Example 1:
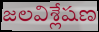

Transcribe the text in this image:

జలవిశ్లేషణ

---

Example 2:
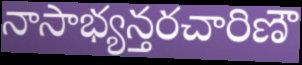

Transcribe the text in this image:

నాసాభ్యన్తరచారిణౌ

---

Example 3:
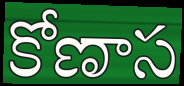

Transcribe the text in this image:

కోణాస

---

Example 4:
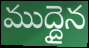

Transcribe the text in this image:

ముద్దైన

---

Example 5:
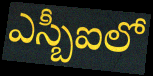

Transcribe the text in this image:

ఎస్బీఐలో